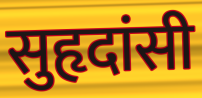
सुहृदांसी